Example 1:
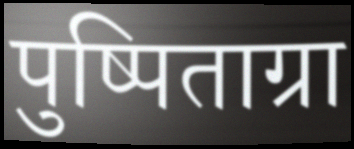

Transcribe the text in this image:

पुष्पिताग्रा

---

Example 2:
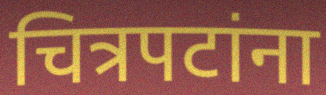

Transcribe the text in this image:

चित्रपटांना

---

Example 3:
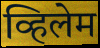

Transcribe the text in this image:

व्हिलेम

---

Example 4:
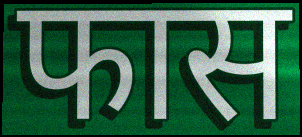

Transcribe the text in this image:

फास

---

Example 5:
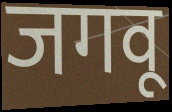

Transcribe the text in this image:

जगवू